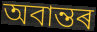
অবান্তৰ